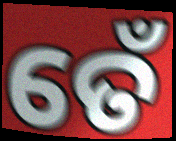
ତେଁ